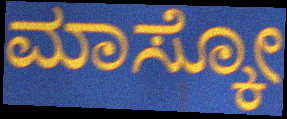
ಮಾಸ್ಕೋ